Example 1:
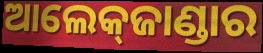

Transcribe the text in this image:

ଆଲେକ୍‌ଜାଣ୍ଡାର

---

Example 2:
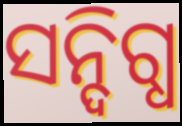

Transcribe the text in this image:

ସନ୍ଦିଗ୍ଧ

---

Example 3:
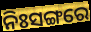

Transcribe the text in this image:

ନିଃସଙ୍ଗରେ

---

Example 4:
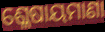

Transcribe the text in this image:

ଶ୍ଳେଷାୟମାଣା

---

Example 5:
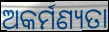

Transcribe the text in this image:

ଅକର୍ମଣ୍ୟତା